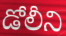
డోలీని